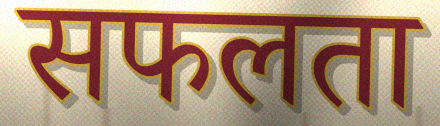
सफलता